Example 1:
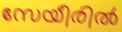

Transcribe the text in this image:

സേയീരിൽ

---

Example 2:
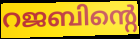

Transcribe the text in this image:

റജബിന്റെ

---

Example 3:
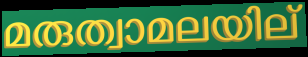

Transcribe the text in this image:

മരുത്വാമലയില്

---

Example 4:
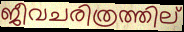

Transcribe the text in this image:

ജീവചരിത്രത്തില്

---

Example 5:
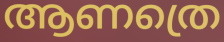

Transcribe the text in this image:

ആണത്രെ